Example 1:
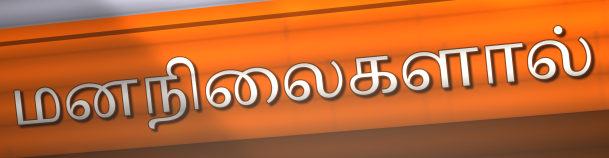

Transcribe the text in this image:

மனநிலைகளால்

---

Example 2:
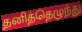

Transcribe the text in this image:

தனித்தெழுந்து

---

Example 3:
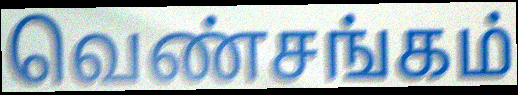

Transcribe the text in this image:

வெண்சங்கம்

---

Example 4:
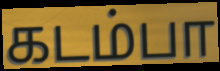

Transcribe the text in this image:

கடம்பா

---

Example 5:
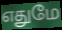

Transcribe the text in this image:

எதுமே